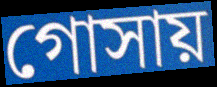
গোসায়